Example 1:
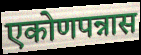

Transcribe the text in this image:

एकोणपन्नास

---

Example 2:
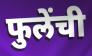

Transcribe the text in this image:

फुलेंची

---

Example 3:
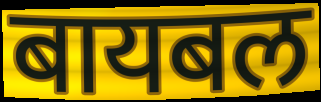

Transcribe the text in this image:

बायबल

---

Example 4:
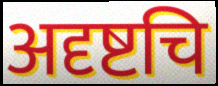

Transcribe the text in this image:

अदृष्टचि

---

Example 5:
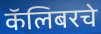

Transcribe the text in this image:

कॅलिबरचे